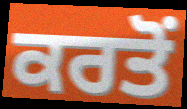
ਕਰਤੋਂ